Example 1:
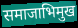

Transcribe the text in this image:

समाजाभिमुख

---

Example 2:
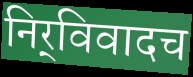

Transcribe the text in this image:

निर्विवादच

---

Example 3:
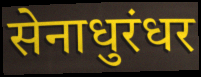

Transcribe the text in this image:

सेनाधुरंधर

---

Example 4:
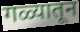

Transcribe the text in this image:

गळ्यातून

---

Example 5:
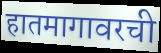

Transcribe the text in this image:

हातमागावरची